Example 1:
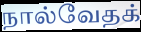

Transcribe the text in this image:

நால்வேதக்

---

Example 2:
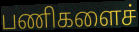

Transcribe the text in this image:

பணிகளைச்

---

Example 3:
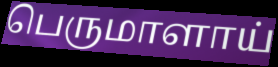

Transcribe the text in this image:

பெருமாளாய்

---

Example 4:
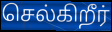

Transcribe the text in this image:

செல்கிறீர்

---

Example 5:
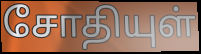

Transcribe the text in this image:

சோதியுள்